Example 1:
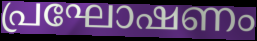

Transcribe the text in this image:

പ്രഘോഷണം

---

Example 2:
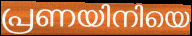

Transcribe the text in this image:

പ്രണയിനിയെ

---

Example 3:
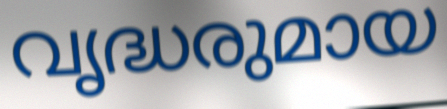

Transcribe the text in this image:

വൃദ്ധരുമായ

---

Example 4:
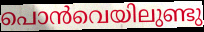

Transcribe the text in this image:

പൊൻവെയിലുണ്ടു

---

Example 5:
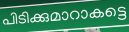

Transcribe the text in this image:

പിടിക്കുമാറാകട്ടെ